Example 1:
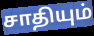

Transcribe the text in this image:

சாதியும்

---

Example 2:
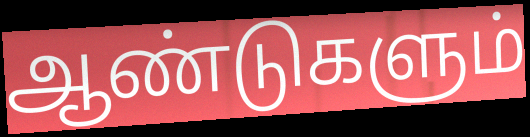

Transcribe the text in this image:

ஆண்டுகளும்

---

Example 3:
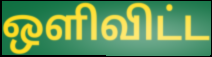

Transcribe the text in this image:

ஒளிவிட்ட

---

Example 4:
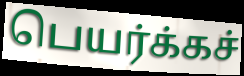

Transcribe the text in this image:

பெயர்க்கச்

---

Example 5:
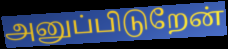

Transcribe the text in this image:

அனுப்பிடுறேன்